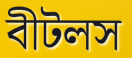
বীটলস